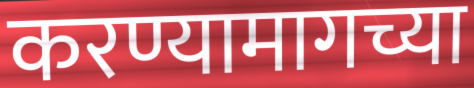
करण्यामागच्या